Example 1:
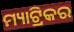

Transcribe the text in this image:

ମ୍ୟାଟ୍ରିକର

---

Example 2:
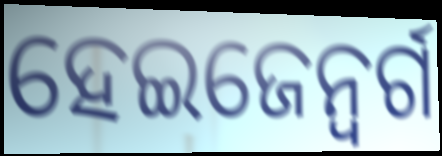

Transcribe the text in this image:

ହେଇଜେନ୍ବର୍ଗ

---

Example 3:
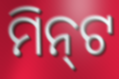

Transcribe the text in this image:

ମିନ୍‌ଟ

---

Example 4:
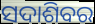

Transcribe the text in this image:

ସଦାଶିବର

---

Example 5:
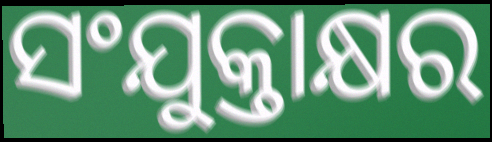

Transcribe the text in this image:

ସଂଯୁକ୍ତାକ୍ଷର